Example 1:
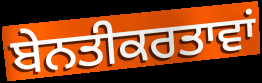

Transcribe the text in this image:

ਬੇਨਤੀਕਰਤਾਵਾਂ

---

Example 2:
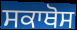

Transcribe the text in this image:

ਸਕਾਥੋਸ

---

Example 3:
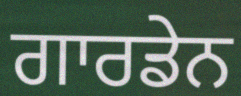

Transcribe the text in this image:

ਗਾਰਡੇਨ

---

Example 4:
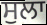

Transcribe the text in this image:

ਸੁਲਾ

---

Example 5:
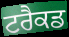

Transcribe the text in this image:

ਟਰੈਕਡ